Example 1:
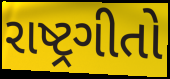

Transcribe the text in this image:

રાષ્ટ્રગીતો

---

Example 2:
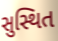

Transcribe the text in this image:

સુસ્થિત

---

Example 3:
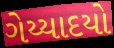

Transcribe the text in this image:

ગેય્યાદયો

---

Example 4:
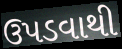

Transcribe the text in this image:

ઉપડવાથી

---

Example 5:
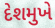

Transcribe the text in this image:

દેશમુખે